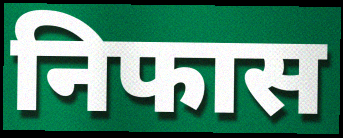
निफास